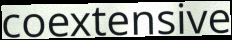
coextensive